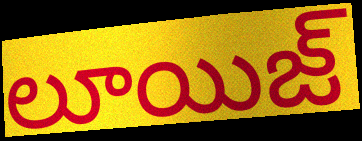
లూయిజ్